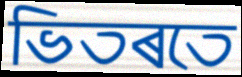
ভিতৰতে